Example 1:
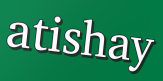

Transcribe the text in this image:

atishay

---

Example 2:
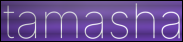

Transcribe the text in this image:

tamasha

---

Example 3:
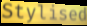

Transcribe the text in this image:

Stylised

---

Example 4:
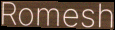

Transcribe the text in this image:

Romesh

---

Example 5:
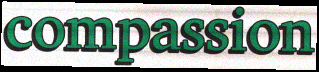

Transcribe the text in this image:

compassion